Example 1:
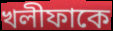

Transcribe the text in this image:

খলীফাকে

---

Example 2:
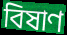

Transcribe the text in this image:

বিষাণ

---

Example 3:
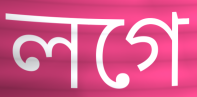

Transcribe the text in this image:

লগে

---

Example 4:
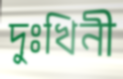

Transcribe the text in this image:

দুঃখিনী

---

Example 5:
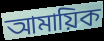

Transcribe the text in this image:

আমায়িক